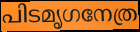
പിടമൃഗനേത്ര